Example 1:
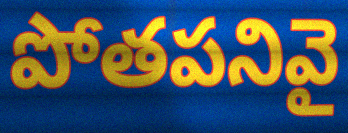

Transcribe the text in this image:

పోతపనివై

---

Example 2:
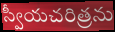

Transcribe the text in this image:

స్వీయచరిత్రను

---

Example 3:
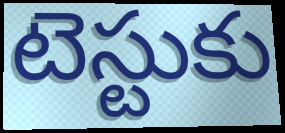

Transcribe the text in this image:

టెస్టుకు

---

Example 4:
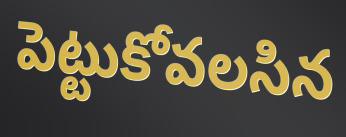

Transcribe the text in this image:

పెట్టుకోవలసిన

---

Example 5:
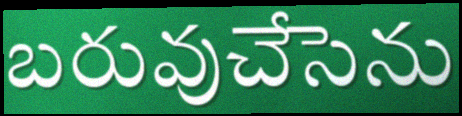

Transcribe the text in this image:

బరువుచేసెను